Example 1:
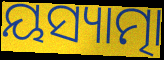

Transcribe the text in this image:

ୟସ୍ୟାତ୍ମା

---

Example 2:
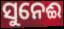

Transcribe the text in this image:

ସୁନେଈ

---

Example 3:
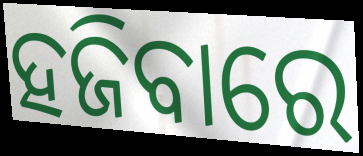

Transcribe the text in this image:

ହଜିବାରେ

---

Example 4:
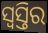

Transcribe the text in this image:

ସ୍ଵସ୍ତିର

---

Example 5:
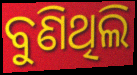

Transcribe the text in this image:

ବୁଣିଥିଲି